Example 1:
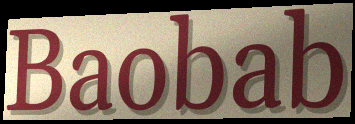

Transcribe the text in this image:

Baobab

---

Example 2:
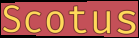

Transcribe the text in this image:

Scotus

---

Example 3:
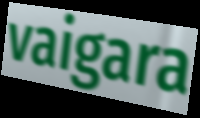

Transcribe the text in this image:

vaigara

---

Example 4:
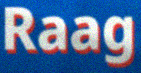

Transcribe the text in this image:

Raag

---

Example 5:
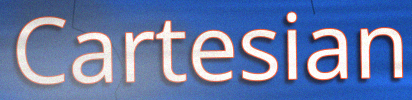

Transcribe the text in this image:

Cartesian